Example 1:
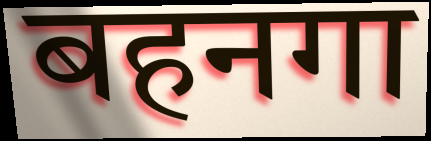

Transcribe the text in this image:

बहनगा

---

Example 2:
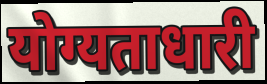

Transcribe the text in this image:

योग्यताधारी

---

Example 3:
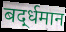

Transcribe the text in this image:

बर्द्धमान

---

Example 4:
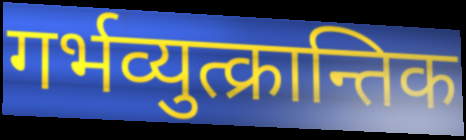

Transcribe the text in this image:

गर्भव्युत्क्रान्तिक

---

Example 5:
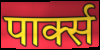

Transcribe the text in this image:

पार्क्‍स